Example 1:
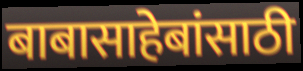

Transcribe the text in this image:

बाबासाहेबांसाठी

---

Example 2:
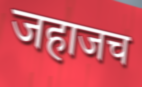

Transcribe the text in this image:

जहाजच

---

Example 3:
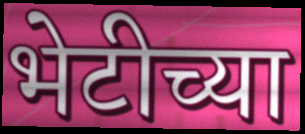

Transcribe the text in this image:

भेटीच्या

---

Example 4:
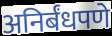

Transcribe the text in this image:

अनिर्बंधपणे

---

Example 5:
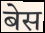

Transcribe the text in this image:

बेस